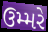
ઉમ્મરે